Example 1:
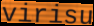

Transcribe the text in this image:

virisu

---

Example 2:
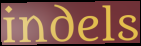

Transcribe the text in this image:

indels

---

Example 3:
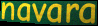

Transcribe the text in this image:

navara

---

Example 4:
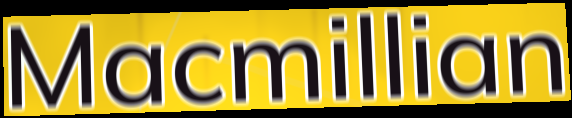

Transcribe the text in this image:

Macmillian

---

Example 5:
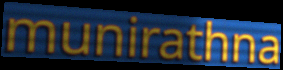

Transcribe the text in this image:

munirathna